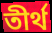
তীর্থ